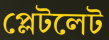
প্লেটলেট